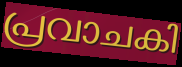
പ്രവാചകി